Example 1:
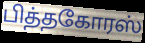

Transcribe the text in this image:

பித்தகோரஸ்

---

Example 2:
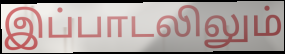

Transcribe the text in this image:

இப்பாடலிலும்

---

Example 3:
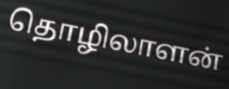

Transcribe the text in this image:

தொழிலாளன்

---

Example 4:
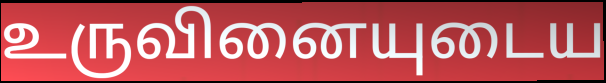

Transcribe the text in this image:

உருவினையுடைய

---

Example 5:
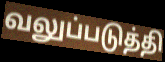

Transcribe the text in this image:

வலுப்படுத்தி